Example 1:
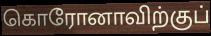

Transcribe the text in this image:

கொரோனாவிற்குப்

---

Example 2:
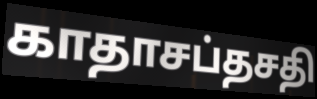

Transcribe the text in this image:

காதாசப்தசதி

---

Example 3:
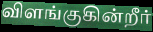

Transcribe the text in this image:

விளங்குகின்றீர்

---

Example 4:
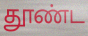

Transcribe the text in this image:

தூண்ட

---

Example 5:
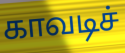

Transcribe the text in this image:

காவடிச்